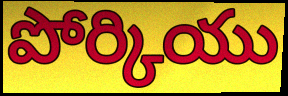
పోర్కియు